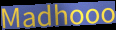
Madhooo